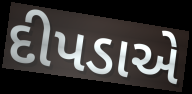
દીપડાએ